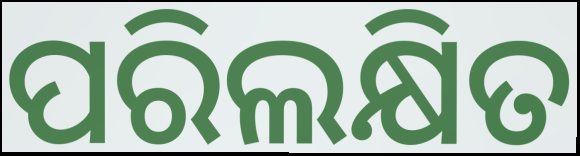
ପରିଲକ୍ଷିତ